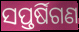
ସପ୍ତର୍ଷିଗଣ